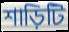
শাড়িটি